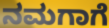
ನಮಗಾಗೆ